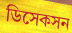
ডিসেকসন